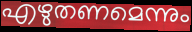
എഴുതണമെന്നും